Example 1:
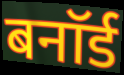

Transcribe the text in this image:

बनॉर्ड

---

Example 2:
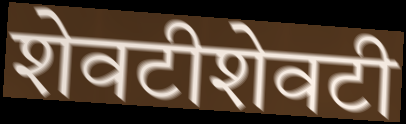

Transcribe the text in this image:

शेवटीशेवटी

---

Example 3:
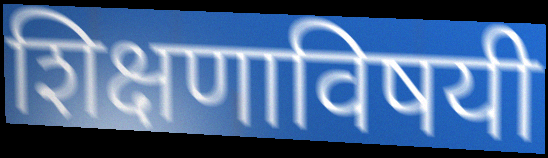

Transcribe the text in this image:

शिक्षणाविषयी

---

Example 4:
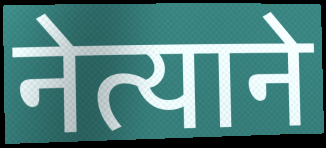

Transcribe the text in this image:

नेत्याने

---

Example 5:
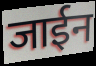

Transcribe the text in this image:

जाईन